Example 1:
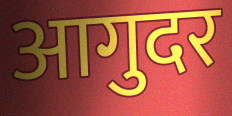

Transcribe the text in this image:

आगुदर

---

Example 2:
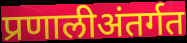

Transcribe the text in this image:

प्रणालीअंतर्गत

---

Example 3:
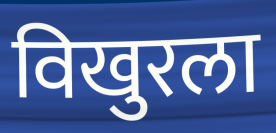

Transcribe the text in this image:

विखुरला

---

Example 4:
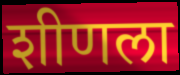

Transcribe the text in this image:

शीणला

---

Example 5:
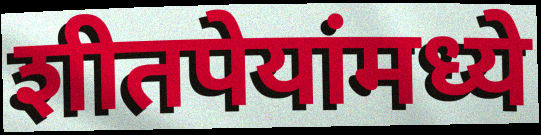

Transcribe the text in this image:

शीतपेयांमध्ये